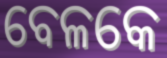
ବେଳକେ